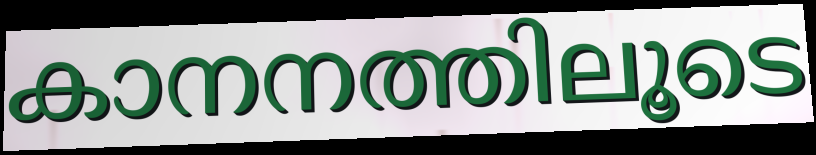
കാനനത്തിലൂടെ